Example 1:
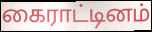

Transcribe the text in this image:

கைராட்டினம்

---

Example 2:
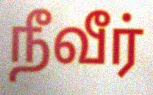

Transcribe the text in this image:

நீவீர்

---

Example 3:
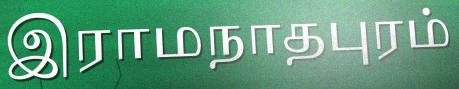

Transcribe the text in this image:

இராமநாதபுரம்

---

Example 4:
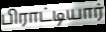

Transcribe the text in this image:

பிராட்டியார்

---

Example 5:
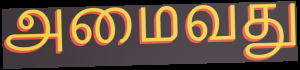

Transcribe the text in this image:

அமைவது